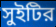
সুইটির